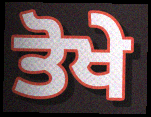
ਤੋਖੇ